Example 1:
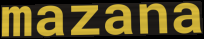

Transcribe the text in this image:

mazana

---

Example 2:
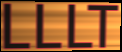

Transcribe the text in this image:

LLLT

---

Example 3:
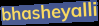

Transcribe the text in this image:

bhasheyalli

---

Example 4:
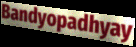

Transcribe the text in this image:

Bandyopadhyay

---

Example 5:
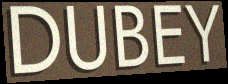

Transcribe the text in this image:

DUBEY